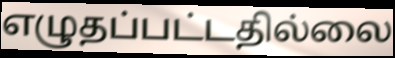
எழுதப்பட்டதில்லை